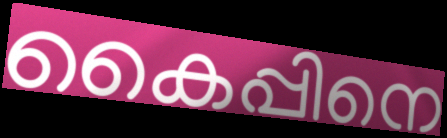
കൈപ്പിനെ